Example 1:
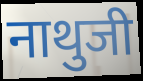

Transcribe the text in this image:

नाथुजी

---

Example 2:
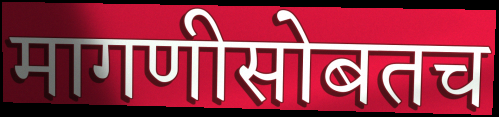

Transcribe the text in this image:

मागणीसोबतच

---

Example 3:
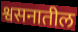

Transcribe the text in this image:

श्वसनातील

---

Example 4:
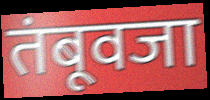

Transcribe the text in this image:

तंबूवजा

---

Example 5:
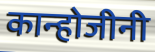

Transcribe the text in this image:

कान्होजीनी